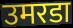
उमरडा